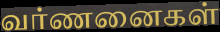
வர்ணனைகள்